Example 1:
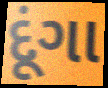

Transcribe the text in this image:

દૂંગા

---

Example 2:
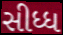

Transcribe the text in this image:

સીધ્ધ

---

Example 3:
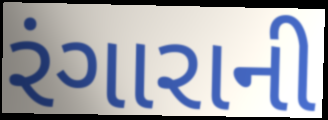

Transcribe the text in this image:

રંગારાની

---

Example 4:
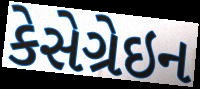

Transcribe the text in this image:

કેસેગ્રેઇન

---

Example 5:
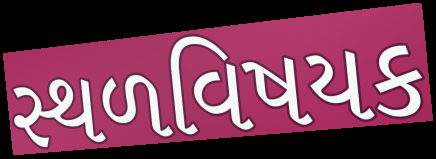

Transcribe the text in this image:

સ્થળવિષયક